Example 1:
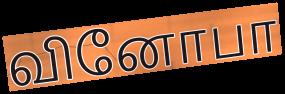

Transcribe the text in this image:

வினோபா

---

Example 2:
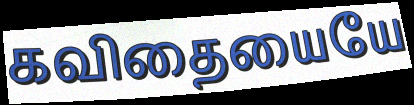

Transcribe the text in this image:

கவிதையையே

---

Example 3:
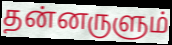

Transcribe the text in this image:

தன்னருளும்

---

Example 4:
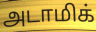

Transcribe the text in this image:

அடாமிக்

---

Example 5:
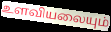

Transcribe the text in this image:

உளவியலையும்